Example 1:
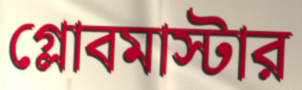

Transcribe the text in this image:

গ্লোবমাস্টার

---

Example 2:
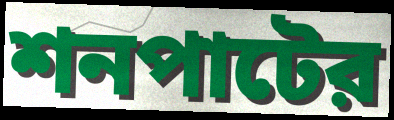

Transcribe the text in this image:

শনপাটের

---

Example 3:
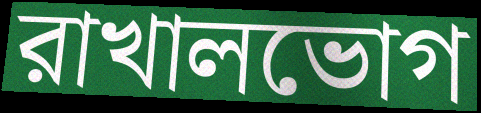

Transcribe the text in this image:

রাখালভোগ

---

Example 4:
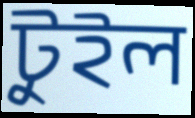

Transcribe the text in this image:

টুইল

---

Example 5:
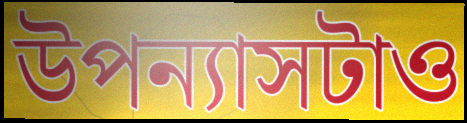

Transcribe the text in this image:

উপন্যাসটাও